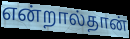
என்றால்தான்